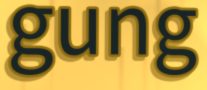
gung